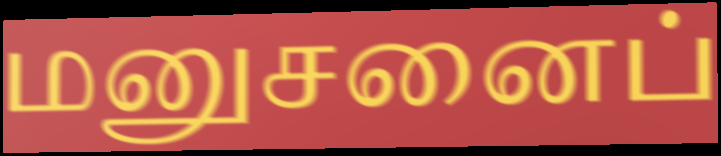
மனுசனைப்